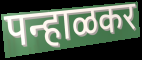
पन्हाळकर